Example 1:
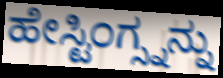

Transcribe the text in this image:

ಹೇಸ್ಟಿಂಗ್ಸ್ನನ್ನು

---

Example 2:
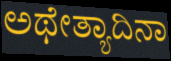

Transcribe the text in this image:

ಅಥೇತ್ಯಾದಿನಾ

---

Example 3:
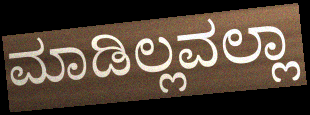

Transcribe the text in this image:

ಮಾಡಿಲ್ಲವಲ್ಲಾ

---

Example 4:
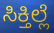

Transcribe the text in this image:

ಸಿಕ್ತಿಲ್ಲೆ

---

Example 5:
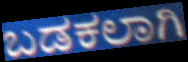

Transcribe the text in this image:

ಬಡಕಲಾಗಿ